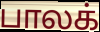
பாலக்